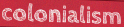
colonialism